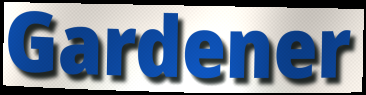
Gardener